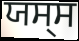
ਯਸ੍ਸ